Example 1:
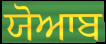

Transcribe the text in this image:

ਯੋਆਬ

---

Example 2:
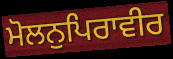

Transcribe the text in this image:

ਮੋਲਨੁਪਿਰਾਵੀਰ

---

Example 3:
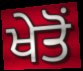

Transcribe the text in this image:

ਖੇਤੋਂ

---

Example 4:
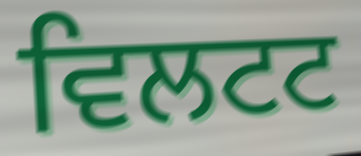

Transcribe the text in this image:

ਵਿਲਟਟ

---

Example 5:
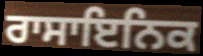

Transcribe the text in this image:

ਰਾਸਾਇਨਿਕ